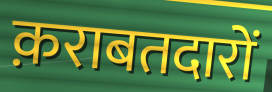
क़राबतदारों